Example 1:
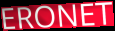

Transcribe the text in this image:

ERONET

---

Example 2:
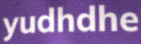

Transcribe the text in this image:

yudhdhe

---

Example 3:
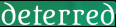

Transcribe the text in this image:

deterred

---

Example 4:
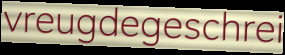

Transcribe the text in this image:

vreugdegeschrei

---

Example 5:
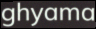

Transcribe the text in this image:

ghyama